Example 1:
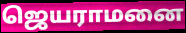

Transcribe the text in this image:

ஜெயராமனை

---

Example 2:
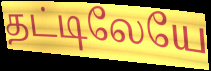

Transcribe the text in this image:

தட்டிலேயே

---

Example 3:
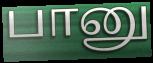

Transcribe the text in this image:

பானு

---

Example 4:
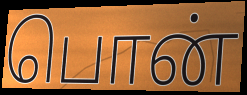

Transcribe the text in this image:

பொன்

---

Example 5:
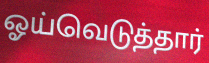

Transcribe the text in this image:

ஓய்வெடுத்தார்